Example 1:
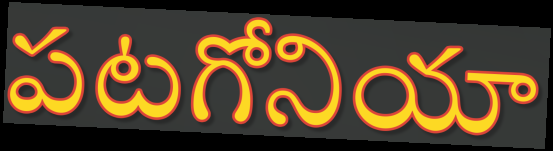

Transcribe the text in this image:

పటగోనియా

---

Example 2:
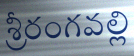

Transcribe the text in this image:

శ్రీరంగవల్లి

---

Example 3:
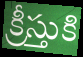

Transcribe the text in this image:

క్రీస్తుకి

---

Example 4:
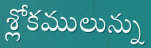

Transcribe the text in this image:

శ్లోకములున్ను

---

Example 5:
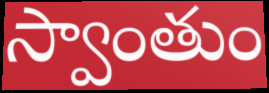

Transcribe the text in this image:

స్వాంతుం